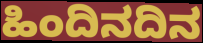
ಹಿಂದಿನದಿನ